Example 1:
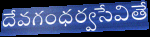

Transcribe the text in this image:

దేవగంధర్వసేవితే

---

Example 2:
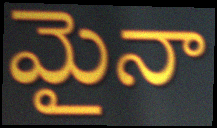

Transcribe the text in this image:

మైనా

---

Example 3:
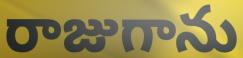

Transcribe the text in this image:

రాజుగాను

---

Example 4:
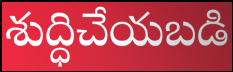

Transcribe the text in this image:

శుద్ధిచేయబడి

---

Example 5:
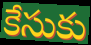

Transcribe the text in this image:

కేసుకు